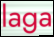
laga